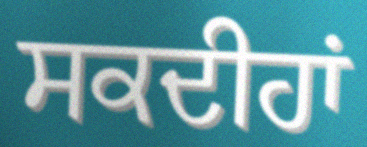
ਸਕਦੀਹਾਂ